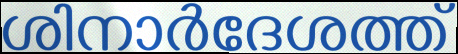
ശിനാർദേശത്ത്